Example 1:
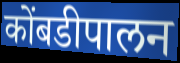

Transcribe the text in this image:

कोंबडीपालन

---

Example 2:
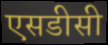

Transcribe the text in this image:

एसडीसी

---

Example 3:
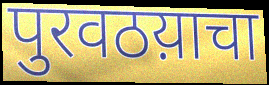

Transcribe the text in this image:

पुरवठय़ाचा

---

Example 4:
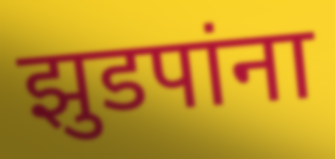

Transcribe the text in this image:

झुडपांना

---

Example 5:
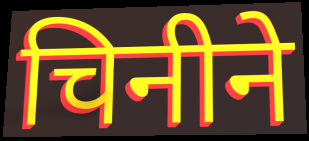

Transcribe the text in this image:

चिनीने